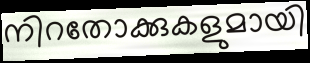
നിറതോക്കുകളുമായി